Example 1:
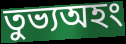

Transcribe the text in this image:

তুভ্যঅহং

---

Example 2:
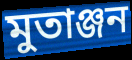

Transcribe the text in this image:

মুতাঞ্জন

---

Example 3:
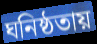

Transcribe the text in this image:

ঘনিষ্ঠতায়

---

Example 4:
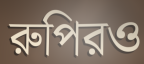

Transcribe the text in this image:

রুপিরও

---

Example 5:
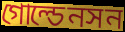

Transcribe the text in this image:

গোল্ডেনসন